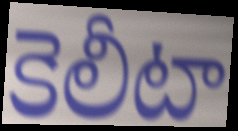
కెలీటా